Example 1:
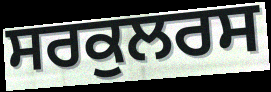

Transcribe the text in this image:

ਸਰਕੁਲਰਸ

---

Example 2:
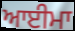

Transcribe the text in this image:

ਆਈਮਾ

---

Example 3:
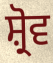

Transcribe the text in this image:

ਸ਼੍ਰੋਵ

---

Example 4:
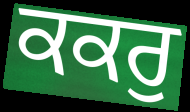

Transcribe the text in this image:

ਕਕਰੁ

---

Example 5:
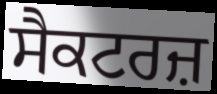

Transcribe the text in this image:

ਸੈਕਟਰਜ਼